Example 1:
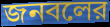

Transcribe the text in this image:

জনবলের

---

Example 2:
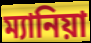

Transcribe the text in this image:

ম্যানিয়া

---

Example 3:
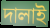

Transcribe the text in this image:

দালাই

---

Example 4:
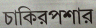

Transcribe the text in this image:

চাকিরপশার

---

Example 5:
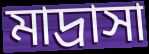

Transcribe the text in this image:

মাদ্রাসা